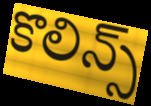
కొలిన్స్